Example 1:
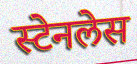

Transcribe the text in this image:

स्टेनलेस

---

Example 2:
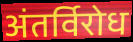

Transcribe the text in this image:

अंतर्विरोध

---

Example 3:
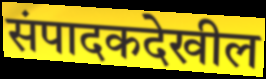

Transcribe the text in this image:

संपादकदेखील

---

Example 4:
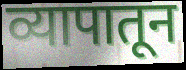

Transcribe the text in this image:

व्यापातून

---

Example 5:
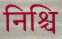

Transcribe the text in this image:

निश्चि